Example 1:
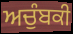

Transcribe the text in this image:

ਅਚੁੰਬਕੀ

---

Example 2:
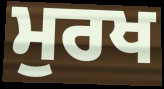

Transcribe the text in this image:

ਮੁਰਖ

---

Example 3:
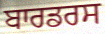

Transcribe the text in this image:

ਬਾਰਡਰਸ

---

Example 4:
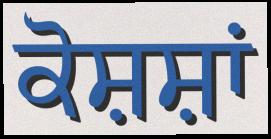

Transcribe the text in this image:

ਕੋਸ਼ਸ਼ਾਂ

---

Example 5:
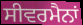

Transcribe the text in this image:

ਸੀਵਰਮੈਨਾਂ